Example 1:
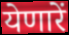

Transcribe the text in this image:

येणारें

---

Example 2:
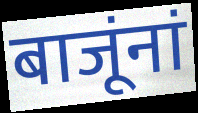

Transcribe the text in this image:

बाजूंनां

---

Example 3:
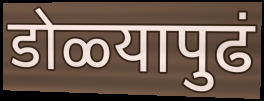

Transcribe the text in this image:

डोळ्यापुढं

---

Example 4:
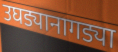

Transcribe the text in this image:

उघड्यानागड्या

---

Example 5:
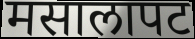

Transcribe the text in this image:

मसालापट